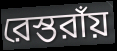
রেস্তরাঁয়